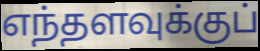
எந்தளவுக்குப்